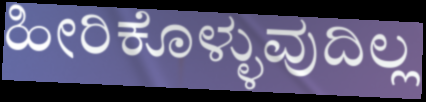
ಹೀರಿಕೊಳ್ಳುವುದಿಲ್ಲ